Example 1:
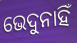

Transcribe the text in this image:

ଭେଦୁନାହିଁ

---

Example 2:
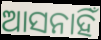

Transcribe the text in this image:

ଆସନାହିଁ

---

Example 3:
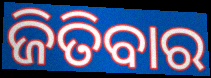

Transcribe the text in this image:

ଜିତିବାର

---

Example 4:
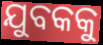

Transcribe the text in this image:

ଯୁବକକୁ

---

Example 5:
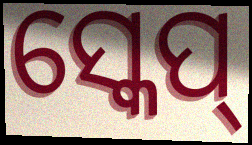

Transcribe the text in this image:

ସ୍କେପ୍